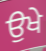
ਉਖੇ